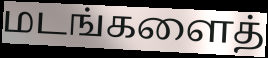
மடங்களைத்